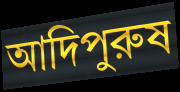
আদিপুরুষ